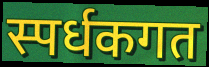
स्पर्धकगत